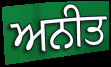
ਅਨੀਤ